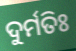
ଦୁର୍ମତିଃ